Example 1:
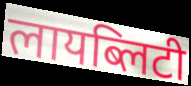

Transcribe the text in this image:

लायब्लिटी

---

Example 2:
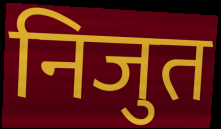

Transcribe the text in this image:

निजुत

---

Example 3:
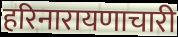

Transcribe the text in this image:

हरिनारायणाचारी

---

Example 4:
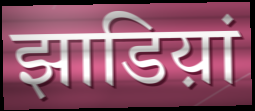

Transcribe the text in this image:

झाडिय़ां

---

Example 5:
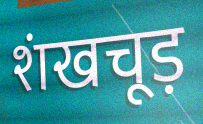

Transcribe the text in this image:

शंखचूड़